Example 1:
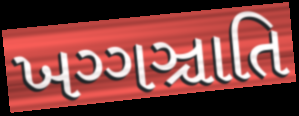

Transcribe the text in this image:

ખગ્ગઞ્ચાતિ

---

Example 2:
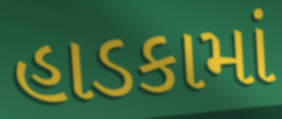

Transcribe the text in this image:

હાડકામાં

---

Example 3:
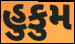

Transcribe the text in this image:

હુકુમ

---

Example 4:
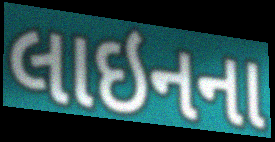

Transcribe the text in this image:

લાઇનના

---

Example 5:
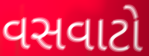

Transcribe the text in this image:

વસવાટો